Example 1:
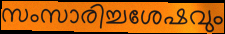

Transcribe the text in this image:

സംസാരിച്ചശേഷവും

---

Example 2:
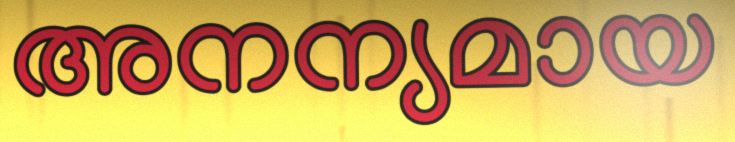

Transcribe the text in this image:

അനന്യമായ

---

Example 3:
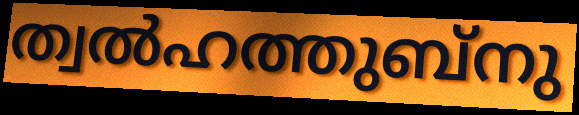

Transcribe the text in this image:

ത്വൽഹത്തുബ്നു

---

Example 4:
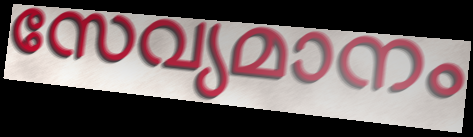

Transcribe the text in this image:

സേവ്യമാനം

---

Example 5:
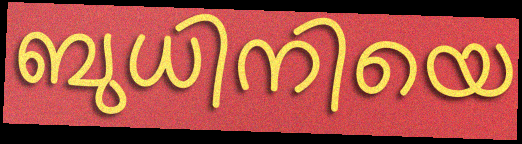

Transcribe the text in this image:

ബുധിനിയെ